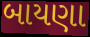
બાયણા